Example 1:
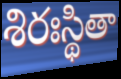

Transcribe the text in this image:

శిరఃస్థితా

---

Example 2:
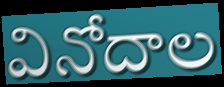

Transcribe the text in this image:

వినోదాల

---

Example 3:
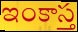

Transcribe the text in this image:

ఇంకాస్త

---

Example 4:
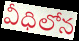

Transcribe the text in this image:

వీధిలోన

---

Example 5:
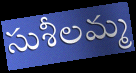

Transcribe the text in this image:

సుశీలమ్మ